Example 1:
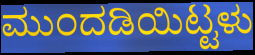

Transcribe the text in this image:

ಮುಂದಡಿಯಿಟ್ಟಳು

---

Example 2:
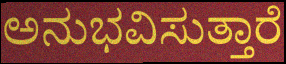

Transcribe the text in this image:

ಅನುಭವಿಸುತ್ತಾರೆ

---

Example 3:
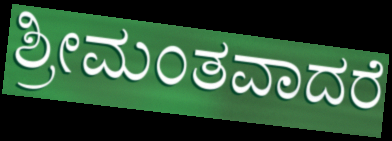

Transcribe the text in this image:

ಶ್ರೀಮಂತವಾದರೆ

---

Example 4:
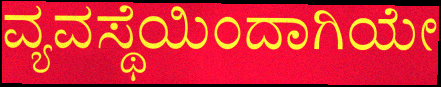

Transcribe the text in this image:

ವ್ಯವಸ್ಥೆಯಿಂದಾಗಿಯೇ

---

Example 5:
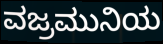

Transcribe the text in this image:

ವಜ್ರಮುನಿಯ